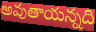
అవుతాయన్నది